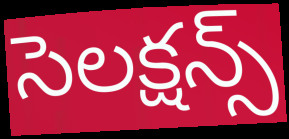
సెలక్షన్స్